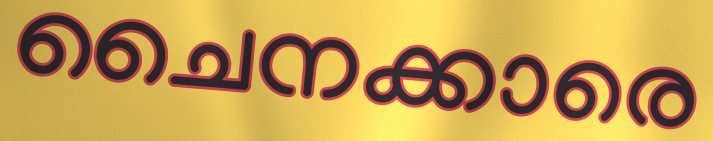
ചൈനക്കാരെ